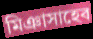
মিঞাসাহেব